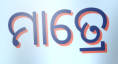
ମାତ୍ରେ